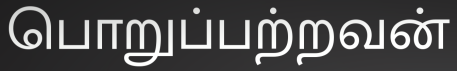
பொறுப்பற்றவன்